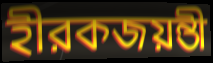
হীরকজয়ন্তী